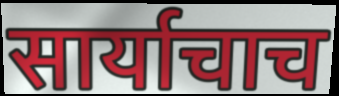
सार्याचाच